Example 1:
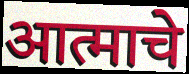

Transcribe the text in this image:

आत्माचे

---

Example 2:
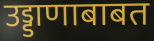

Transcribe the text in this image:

उड्डाणाबाबत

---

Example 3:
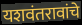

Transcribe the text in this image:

यशवंतरावांचे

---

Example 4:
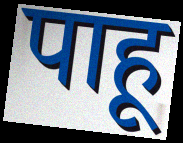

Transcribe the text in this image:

पाहू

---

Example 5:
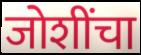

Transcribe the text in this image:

जोशींचा